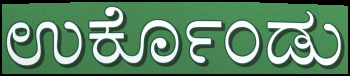
ಉರ್ಕೊಂಡು